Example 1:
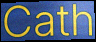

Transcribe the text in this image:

Cath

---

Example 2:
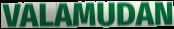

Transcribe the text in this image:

VALAMUDAN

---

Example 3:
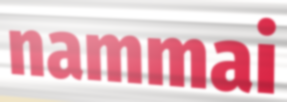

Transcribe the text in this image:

nammai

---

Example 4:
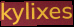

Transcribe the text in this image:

kylixes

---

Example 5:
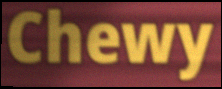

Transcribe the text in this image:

Chewy